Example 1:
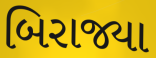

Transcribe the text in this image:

બિરાજ્યા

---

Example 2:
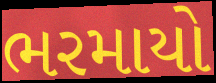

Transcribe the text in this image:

ભરમાયો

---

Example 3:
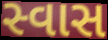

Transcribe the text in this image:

સ્વાસ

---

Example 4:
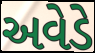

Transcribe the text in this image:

અવેડે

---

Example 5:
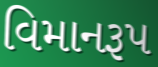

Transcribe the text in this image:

વિમાનરૂપ